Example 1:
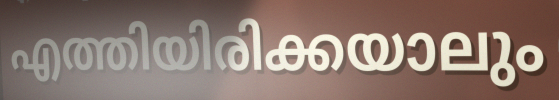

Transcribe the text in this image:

എത്തിയിരിക്കയാലും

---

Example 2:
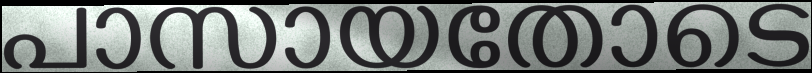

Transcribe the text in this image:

പാസായതോടെ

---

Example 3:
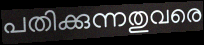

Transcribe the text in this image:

പതിക്കുന്നതുവരെ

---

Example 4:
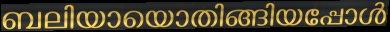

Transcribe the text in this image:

ബലിയായൊതിങ്ങിയപ്പോൾ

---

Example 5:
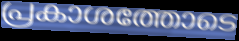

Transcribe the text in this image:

പ്രകാശത്തോടെ